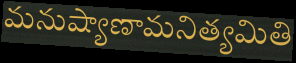
మనుష్యాణామనిత్యమితి